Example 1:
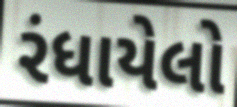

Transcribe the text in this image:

રંધાયેલો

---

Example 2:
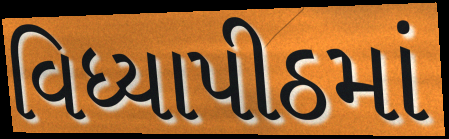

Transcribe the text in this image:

વિધ્યાપીઠમાં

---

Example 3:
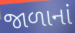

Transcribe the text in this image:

જાળાનાં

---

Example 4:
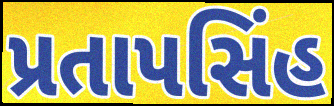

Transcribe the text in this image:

પ્રતાપસિંહ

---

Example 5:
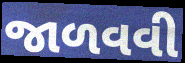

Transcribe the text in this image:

જાળવવી